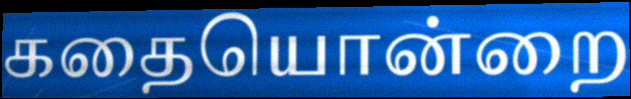
கதையொன்றை